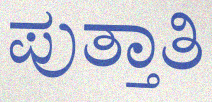
ಪುತ್ತಾತಿ